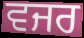
ਵਜਰ